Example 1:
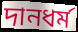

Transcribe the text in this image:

দানধর্ম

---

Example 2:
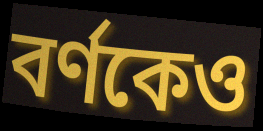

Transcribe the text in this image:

বর্ণকেও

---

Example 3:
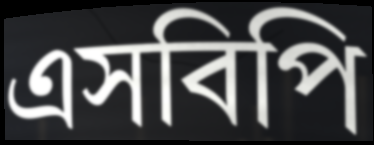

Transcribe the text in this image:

এসবিপি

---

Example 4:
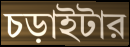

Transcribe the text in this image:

চড়াইটার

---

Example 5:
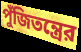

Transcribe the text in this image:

পুঁজিতন্ত্রের